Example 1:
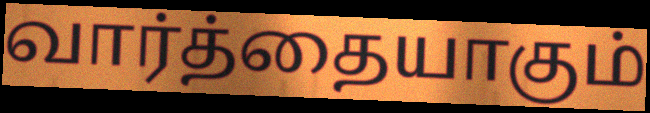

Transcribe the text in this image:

வார்த்தையாகும்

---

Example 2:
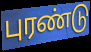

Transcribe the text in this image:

புரண்டு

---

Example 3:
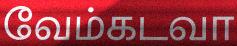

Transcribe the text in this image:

வேம்கடவா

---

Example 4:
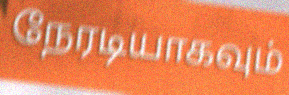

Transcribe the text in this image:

நேரடியாகவும்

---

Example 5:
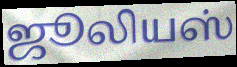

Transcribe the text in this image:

ஜூலியஸ்